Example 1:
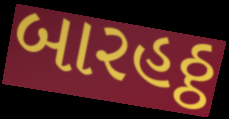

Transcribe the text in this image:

બારહઠ્ઠ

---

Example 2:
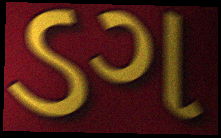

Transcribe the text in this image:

ડગ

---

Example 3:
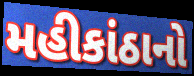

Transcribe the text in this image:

મહીકાંઠાનો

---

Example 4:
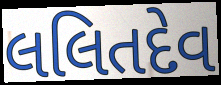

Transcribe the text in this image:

લલિતદેવ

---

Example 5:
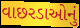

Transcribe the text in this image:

વાછરડાઓનું